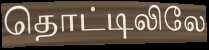
தொட்டிலிலே